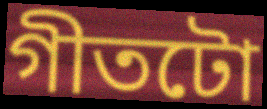
গীতটো